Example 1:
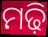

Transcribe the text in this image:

ମଢ଼ି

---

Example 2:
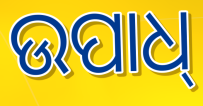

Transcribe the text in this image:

ଉପାଧ୍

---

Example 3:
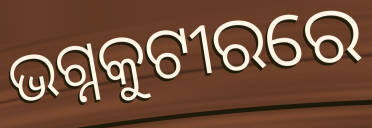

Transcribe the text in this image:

ଭଗ୍ନକୁଟୀରରେ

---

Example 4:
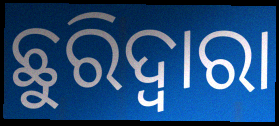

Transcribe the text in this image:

ଛୁରିଦ୍ୱାରା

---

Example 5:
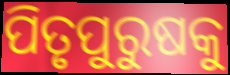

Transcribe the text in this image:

ପିତୃପୁରୁଷକୁ